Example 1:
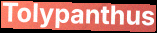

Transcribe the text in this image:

Tolypanthus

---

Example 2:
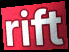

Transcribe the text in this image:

rift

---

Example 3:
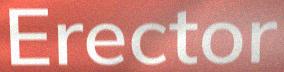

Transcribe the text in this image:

Erector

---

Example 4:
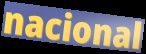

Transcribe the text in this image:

nacional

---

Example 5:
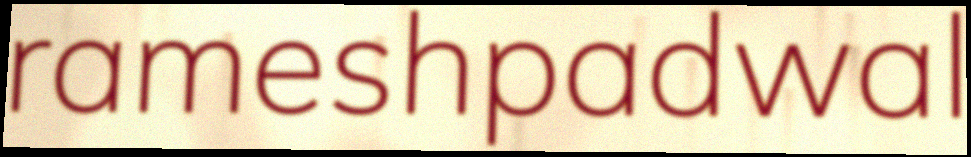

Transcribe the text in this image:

rameshpadwal